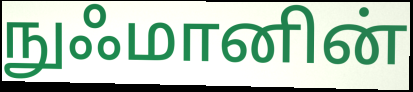
நுஃமானின்